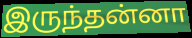
இருந்தன்னா